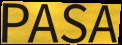
PASA